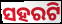
ସହରଟି